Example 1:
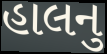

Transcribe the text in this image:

હાલનુ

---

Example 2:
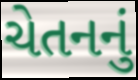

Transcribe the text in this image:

ચેતનનું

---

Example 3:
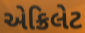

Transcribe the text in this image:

એક્રિલેટ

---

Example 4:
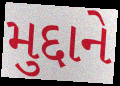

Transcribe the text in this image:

મુદ્દાને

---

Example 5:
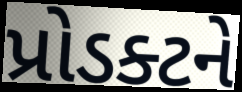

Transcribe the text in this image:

પ્રોડક્ટને